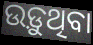
ଉଡ଼ୁଥିବା